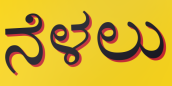
ನೆಳಲು